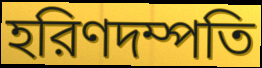
হরিণদম্পতি